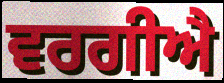
ਵਰਗੀਐ